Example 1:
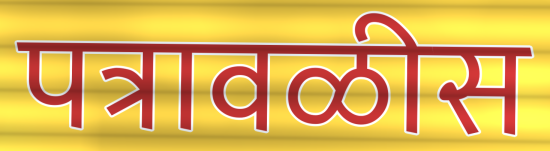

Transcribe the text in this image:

पत्रावळीस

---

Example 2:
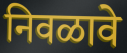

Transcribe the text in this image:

निवळावे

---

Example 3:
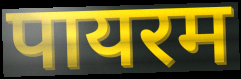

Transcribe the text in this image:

पायरम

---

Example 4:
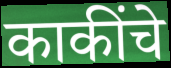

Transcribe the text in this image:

काकींचे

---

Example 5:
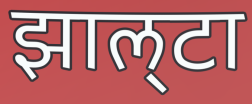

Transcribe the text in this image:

झाल्टा